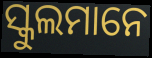
ସ୍କୁଲମାନେ